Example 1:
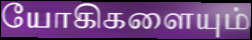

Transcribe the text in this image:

யோகிகளையும்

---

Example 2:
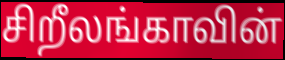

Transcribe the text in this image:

சிறீலங்காவின்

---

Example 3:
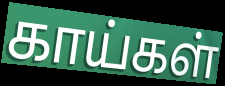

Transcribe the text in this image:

காய்கள்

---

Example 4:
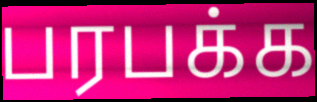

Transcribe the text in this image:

பரபக்க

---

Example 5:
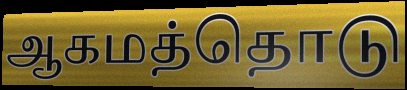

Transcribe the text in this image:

ஆகமத்தொடு